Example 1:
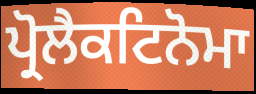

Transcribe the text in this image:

ਪ੍ਰੋਲੈਕਟਿਨੋਮਾ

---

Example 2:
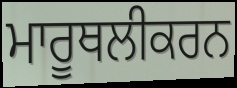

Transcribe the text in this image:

ਮਾਰੂਥਲੀਕਰਨ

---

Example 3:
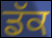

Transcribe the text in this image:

ਡੱਕ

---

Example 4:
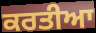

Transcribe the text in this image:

ਕਰਤੀਆ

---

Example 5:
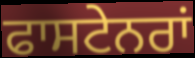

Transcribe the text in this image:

ਫਾਸਟੇਨਰਾਂ